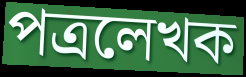
পত্রলেখক